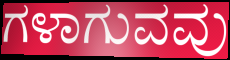
ಗಳಾಗುವವು